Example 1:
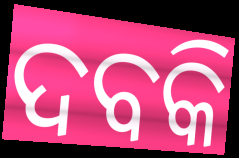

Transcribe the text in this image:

ଦବକି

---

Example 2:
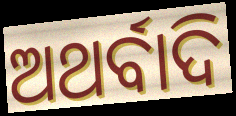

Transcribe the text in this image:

ଅଥର୍ବାଦି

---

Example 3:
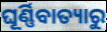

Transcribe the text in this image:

ଘୂର୍ଣ୍ଣିବାତ୍ୟାରୁ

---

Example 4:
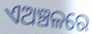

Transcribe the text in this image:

ଏଅଞ୍ଚଳରେ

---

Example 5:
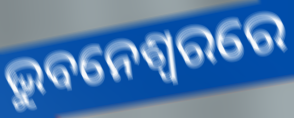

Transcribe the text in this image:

ଭୁବନେଶ୍ବରରେ